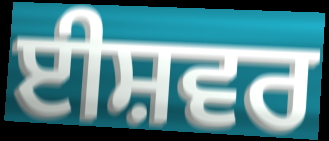
ਈਸ਼ਵਰ